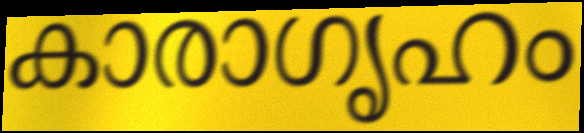
കാരാഗൃഹം